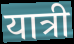
यात्री